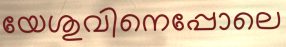
യേശുവിനെപ്പോലെ